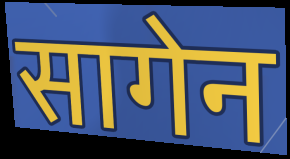
सागेन